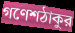
গণেশঠাকুর